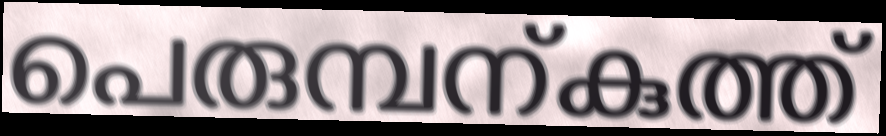
പെരുമ്പന്കുത്ത്